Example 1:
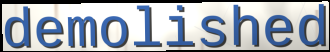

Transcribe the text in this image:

demolished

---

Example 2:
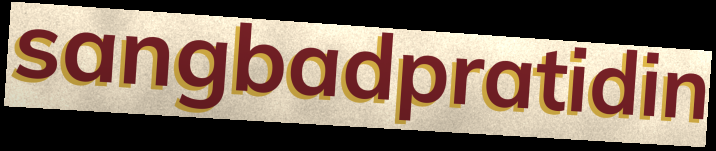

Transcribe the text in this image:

sangbadpratidin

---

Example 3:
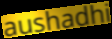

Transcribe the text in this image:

aushadhi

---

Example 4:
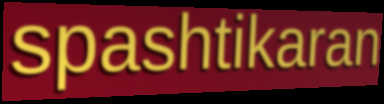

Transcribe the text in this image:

spashtikaran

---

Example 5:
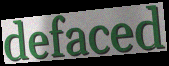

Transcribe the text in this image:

defaced